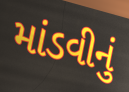
માંડવીનું